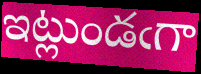
ఇట్లుండఁగా